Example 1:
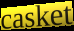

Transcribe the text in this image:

casket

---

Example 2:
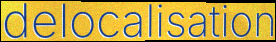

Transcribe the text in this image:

delocalisation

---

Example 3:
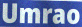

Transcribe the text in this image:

Umrao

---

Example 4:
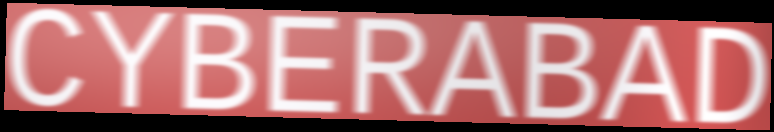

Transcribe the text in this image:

CYBERABAD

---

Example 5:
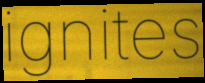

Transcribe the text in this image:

ignites